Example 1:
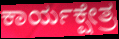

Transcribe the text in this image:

ಕಾರ್ಯಕ್ಷೇತ್ರ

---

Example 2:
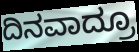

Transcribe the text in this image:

ದಿನವಾದ್ರೂ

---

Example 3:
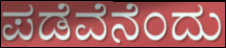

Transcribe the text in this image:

ಪಡೆವೆನೆಂದು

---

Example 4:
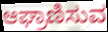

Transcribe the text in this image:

ಆಘ್ರಾಣಿಸುವ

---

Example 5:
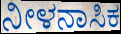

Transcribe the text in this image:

ನೀಳನಾಸಿಕ